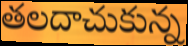
తలదాచుకున్న